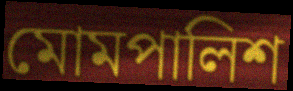
মোমপালিশ